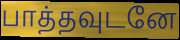
பாத்தவுடனே